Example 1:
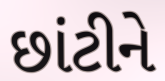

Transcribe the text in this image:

છાંટીને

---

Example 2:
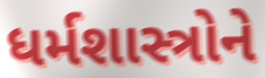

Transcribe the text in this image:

ધર્મશાસ્ત્રોને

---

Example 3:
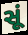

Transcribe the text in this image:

સૂં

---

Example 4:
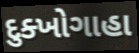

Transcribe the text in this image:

દુક્ખોગાહા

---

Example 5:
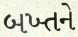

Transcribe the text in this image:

બખ્તને